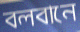
বলবানে